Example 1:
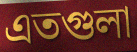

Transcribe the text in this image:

এতগুলা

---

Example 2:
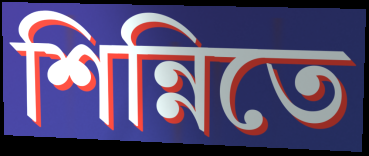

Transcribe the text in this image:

শিন্নিতে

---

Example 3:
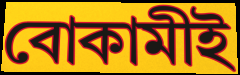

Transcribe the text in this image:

বোকামীই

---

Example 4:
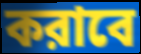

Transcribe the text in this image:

করাবে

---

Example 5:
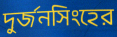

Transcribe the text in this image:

দুর্জনসিংহের